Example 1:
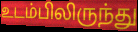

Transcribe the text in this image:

உடம்பிலிருந்து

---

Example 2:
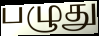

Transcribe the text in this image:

பழுது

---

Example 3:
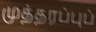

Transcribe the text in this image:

முத்தரப்புப்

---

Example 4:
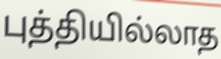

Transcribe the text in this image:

புத்தியில்லாத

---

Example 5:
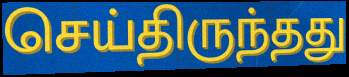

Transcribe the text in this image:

செய்திருந்தது